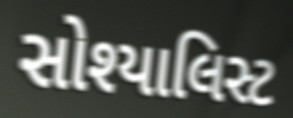
સોશ્યાલિસ્ટ